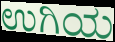
ಉಗಿಯ